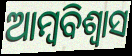
ଆମ୍ବବିଶ୍ଵାସ